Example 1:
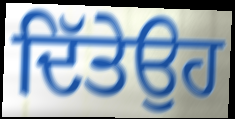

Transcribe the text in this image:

ਦਿੱਤੇਉਹ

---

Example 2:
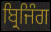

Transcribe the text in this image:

ਬ੍ਰਿਜਿੰਗ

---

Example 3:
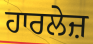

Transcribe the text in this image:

ਹਾਰਲੇਜ਼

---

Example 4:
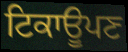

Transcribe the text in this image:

ਟਿਕਾਊਪਣ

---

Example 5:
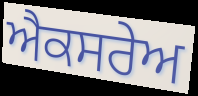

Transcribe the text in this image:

ਐਕਸਰੇਅ